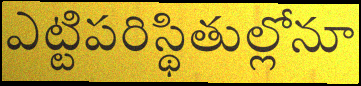
ఎట్టిపరిస్థితుల్లోనూ